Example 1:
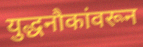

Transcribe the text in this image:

युद्धनौकांवरून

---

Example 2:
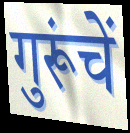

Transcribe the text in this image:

गुरूंचें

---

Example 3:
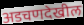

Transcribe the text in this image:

अडचणदेखील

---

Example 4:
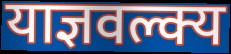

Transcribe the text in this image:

याज्ञवल्क्य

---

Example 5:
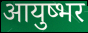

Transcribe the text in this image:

आयुष्भर